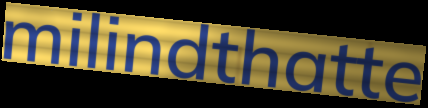
milindthatte